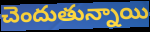
చెందుతున్నాయి